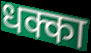
धक्का